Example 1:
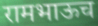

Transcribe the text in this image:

रामभाऊच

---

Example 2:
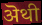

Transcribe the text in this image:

ऄथी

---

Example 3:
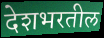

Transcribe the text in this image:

देशभरतील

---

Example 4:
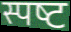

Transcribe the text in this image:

स्‍पष्‍ट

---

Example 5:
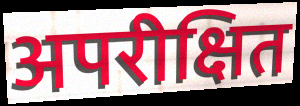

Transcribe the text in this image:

अपरीक्षित